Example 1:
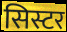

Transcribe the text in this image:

सिस्टर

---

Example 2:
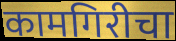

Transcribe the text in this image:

कामगिरीचा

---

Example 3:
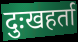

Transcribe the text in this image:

दुःखहर्ता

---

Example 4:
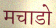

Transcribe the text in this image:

मचाडो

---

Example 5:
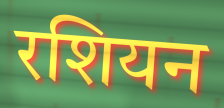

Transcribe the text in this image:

रशियन